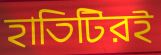
হাতিটিরই